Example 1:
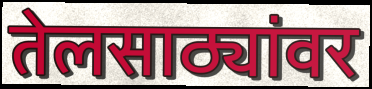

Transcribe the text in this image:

तेलसाठ्यांवर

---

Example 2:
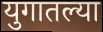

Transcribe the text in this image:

युगातल्या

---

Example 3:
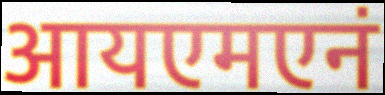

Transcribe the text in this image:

आयएमएनं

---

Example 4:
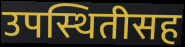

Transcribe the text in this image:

उपस्थितीसह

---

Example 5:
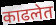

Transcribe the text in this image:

काढलेत